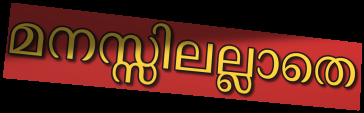
മനസ്സിലല്ലാതെ